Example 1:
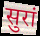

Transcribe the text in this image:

सुरां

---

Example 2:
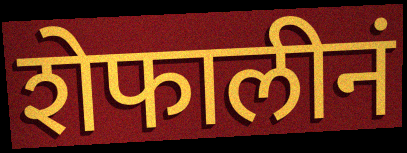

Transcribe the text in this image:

शेफालीनं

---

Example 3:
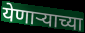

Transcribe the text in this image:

येणाऱ्याच्या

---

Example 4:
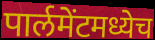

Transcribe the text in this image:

पार्लमेंटमध्येच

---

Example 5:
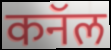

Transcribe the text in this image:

कनॅल